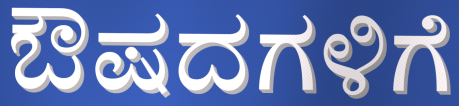
ಔಷದಗಳಿಗೆ